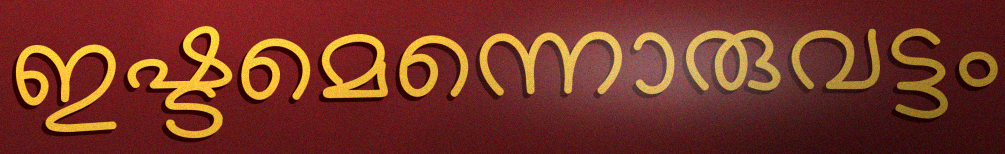
ഇഷ്ടമെന്നൊരുവട്ടം